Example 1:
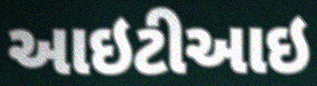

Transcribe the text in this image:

આઇટીઆઇ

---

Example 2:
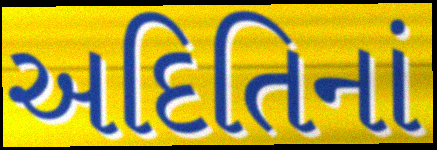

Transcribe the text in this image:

અદિતિનાં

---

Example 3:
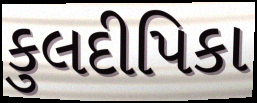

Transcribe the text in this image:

કુલદીપિકા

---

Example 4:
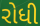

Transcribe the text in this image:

રોધી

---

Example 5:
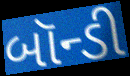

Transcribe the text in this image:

બૉન્ડી